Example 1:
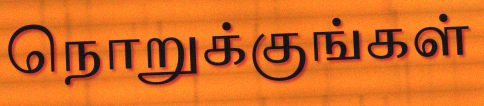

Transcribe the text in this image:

நொறுக்குங்கள்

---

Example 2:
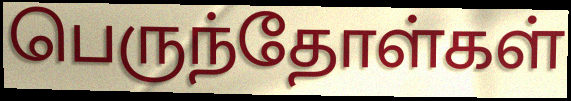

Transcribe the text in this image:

பெருந்தோள்கள்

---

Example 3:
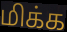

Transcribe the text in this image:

மிக்க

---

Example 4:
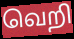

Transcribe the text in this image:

வெறி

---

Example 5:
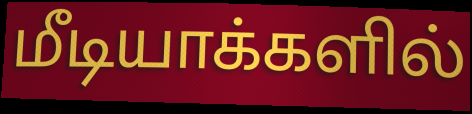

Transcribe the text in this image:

மீடியாக்களில்